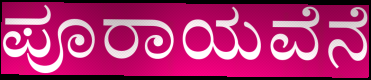
ಪೂರಾಯವೆನೆ